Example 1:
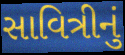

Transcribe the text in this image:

સાવિત્રીનું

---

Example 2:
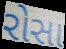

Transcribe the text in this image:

રોસા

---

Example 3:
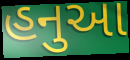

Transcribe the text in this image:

હનુઆ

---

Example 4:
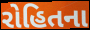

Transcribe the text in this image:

રોહિતના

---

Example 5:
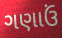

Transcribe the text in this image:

ગણાઉં